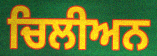
ਚਿਲੀਅਨ